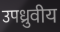
उपध्रुवीय